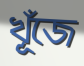
খূঁজে